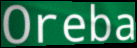
Oreba